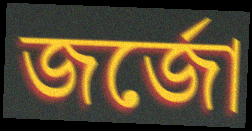
জর্জো